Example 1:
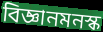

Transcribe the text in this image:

বিজ্ঞানমনস্ক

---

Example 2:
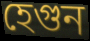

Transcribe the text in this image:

হেগুন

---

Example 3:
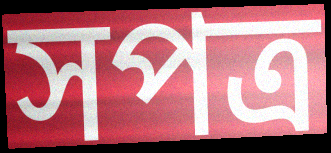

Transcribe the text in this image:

সপত্র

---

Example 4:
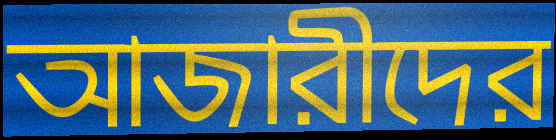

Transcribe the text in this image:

আজারীদের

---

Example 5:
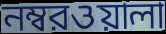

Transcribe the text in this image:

নম্বরওয়ালা